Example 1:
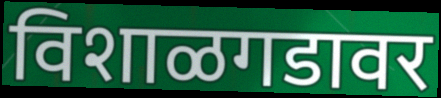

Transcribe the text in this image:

विशाळगडावर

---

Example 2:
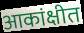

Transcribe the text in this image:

आकांक्षीत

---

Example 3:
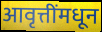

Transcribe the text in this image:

आवृत्तींमधून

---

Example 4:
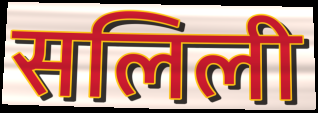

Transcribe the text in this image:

सलिली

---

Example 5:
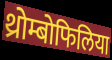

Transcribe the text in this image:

थ्रोम्बोफिलिया